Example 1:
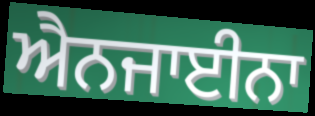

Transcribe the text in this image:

ਐਨਜਾਈਨਾ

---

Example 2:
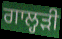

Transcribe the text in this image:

ਗਾਲ੍ਹੜੀ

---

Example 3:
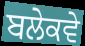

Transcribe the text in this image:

ਬਲੇਕਵੇ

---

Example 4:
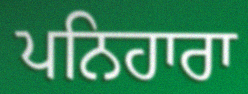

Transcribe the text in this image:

ਪਨਿਹਾਰਾ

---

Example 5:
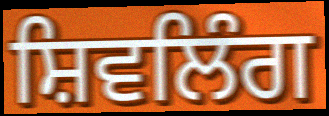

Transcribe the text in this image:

ਸ਼ਿਵਲਿੰਗ